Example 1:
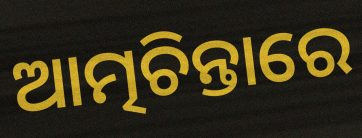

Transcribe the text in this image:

ଆତ୍ମଚିନ୍ତାରେ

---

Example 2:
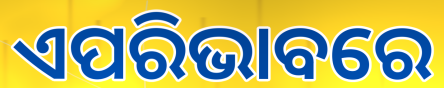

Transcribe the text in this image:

ଏପରିଭାବରେ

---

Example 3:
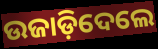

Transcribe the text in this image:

ଉଜାଡ଼ିଦେଲେ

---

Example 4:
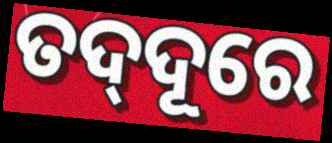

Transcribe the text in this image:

ତଦ୍‍ଦୂରେ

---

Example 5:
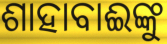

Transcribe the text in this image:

ଶାହାବାଈଙ୍କୁ